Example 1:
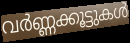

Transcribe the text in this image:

വർണ്ണക്കൂട്ടുകൾ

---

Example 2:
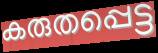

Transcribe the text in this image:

കരുതപ്പെട്ട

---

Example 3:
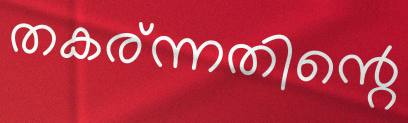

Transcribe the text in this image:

തകര്ന്നതിന്റെ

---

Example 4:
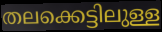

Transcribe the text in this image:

തലക്കെട്ടിലുള്ള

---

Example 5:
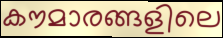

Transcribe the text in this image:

കൗമാരങ്ങളിലെ